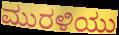
ಮುರಳಿಯು